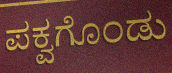
ಪಕ್ವಗೊಂಡು